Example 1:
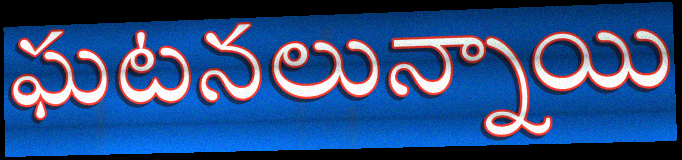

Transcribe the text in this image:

ఘటనలున్నాయి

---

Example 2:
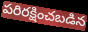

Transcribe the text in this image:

పరిరక్షించబడిన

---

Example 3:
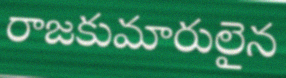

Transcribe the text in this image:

రాజకుమారులైన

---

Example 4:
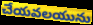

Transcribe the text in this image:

చేయవలయును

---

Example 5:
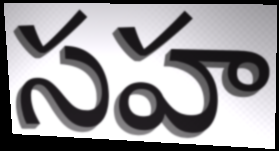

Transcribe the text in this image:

సహ